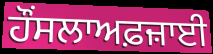
ਹੌਂਸਲਾਅਫ਼ਜ਼ਾਈ